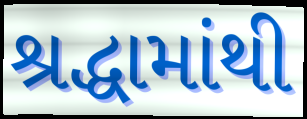
શ્રદ્ધામાંથી